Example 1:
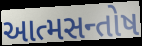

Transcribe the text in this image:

આત્મસન્તોષ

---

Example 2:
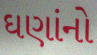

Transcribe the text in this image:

ઘણાંનો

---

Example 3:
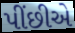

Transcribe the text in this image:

પીંછીએ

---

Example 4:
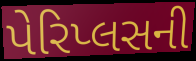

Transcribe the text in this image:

પેરિપ્લસની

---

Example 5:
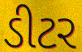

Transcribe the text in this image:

ડીટર